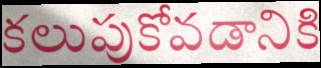
కలుపుకోవడానికి